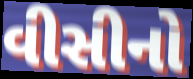
વીસીનો